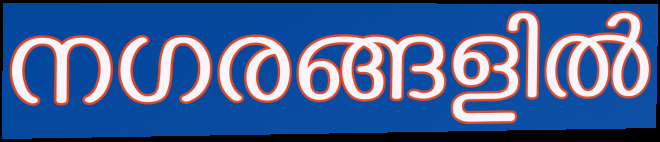
നഗരങ്ങളിൽ